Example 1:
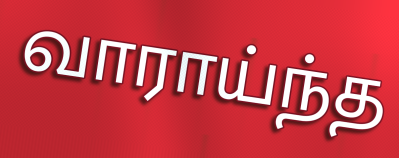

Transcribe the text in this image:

வாராய்ந்த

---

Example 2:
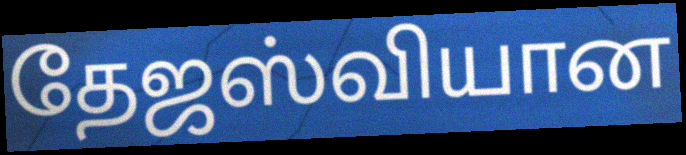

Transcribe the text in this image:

தேஜஸ்வியான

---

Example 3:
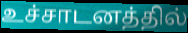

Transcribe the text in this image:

உச்சாடனத்தில்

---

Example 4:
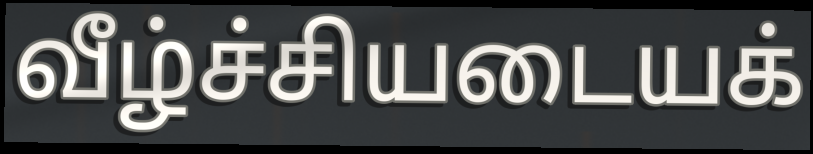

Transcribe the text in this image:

வீழ்ச்சியடையக்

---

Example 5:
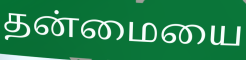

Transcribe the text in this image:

தன்மையை